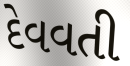
દેવવતી